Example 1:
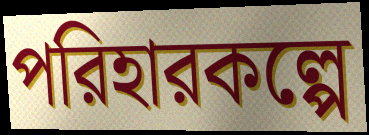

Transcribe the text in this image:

পরিহারকল্পে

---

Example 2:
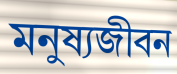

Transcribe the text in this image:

মনুষ্যজীবন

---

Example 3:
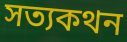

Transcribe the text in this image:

সত্যকথন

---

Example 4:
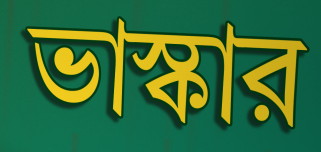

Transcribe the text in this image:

ভাস্কার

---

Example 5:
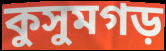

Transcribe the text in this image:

কুসুমগড়